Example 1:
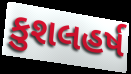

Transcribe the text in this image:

કુશલહર્ષ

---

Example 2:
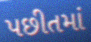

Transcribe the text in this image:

પછીતમાં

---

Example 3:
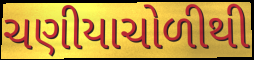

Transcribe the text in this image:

ચણીયાચોળીથી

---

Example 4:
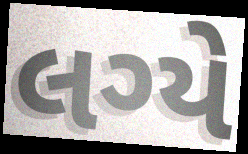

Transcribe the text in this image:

લગ્યે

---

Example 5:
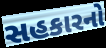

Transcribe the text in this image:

સહકારનો